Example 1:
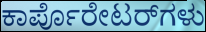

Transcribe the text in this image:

ಕಾರ್ಪೊರೇಟರ್‌ಗಳು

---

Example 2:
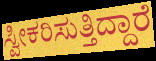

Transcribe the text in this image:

ಸ್ವೀಕರಿಸುತ್ತಿದ್ದಾರೆ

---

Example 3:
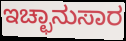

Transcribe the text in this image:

ಇಚ್ಛಾನುಸಾರ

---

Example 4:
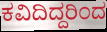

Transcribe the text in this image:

ಕವಿದಿದ್ದರಿಂದ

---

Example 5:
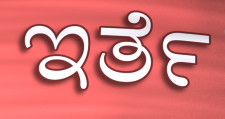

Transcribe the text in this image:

ಇರ್ತೆ